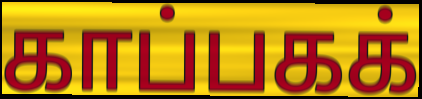
காப்பகக்